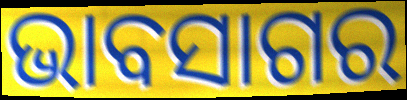
ଭାବସାଗର